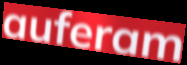
auferam